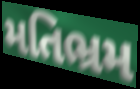
મતિભ્રમ